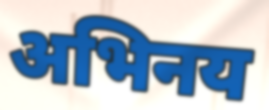
अभिनय